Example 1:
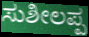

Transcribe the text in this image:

ಸುಶೀಲಪ್ಪ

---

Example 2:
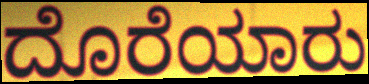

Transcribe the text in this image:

ದೊರೆಯಾರು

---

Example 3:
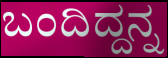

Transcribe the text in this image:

ಬಂದಿದ್ದನ್ನ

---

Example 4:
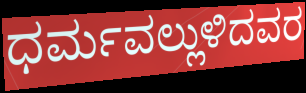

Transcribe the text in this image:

ಧರ್ಮವಲ್ಲುಳಿದವರ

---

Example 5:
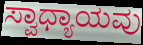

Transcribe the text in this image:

ಸ್ವಾಧ್ಯಾಯವು